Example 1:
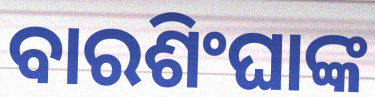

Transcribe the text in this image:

ବାରଶିଂଘାଙ୍କ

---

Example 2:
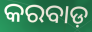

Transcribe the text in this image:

କରବାଡ଼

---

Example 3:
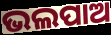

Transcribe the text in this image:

ଭଲପାଅ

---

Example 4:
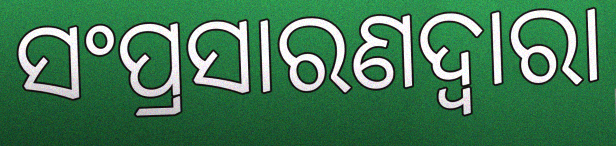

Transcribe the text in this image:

ସଂପ୍ରସାରଣଦ୍ଵାରା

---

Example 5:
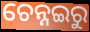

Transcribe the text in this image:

ଚେନ୍ନଇରୁ